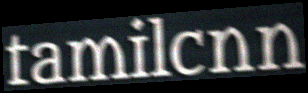
tamilcnn